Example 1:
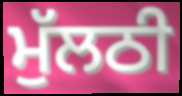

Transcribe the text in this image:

ਮੁੱਲਠੀ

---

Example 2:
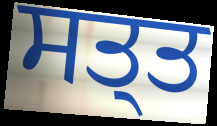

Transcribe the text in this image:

ਸਤ੍ਤ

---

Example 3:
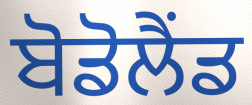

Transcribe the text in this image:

ਬੋਡੋਲੈਂਡ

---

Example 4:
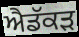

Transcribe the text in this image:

ਐਡੱਕੜ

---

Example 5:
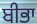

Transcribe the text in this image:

ਬੀਭਾ